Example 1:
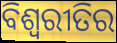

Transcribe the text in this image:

ବିଶ୍ଵରୀତିର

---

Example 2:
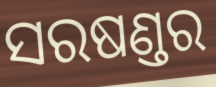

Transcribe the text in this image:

ସରଷଣ୍ଡର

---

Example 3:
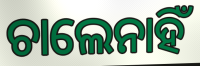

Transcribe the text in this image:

ଚାଲେନାହିଁ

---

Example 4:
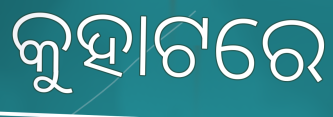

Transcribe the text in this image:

କୁହାଟରେ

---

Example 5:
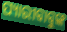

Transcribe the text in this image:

ପ୍ୟାରୀବାବୁଙ୍କ